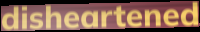
disheartened